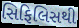
સિફિલિસથી